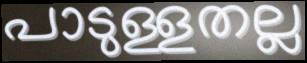
പാടുള്ളതല്ല